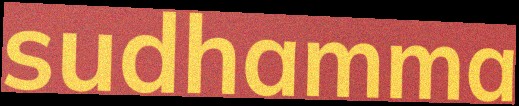
sudhamma